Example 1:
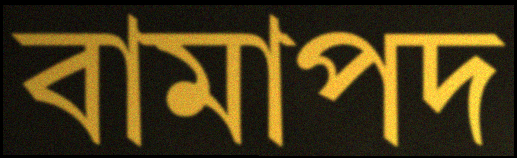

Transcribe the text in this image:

বামাপদ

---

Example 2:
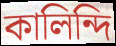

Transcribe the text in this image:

কালিন্দি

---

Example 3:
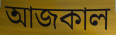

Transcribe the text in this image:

আজকাল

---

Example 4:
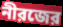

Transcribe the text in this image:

নীরজের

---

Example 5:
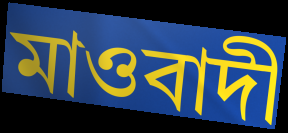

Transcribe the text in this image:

মাওবাদী